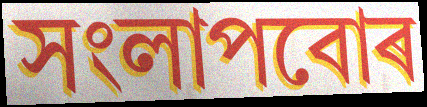
সংলাপবোৰ